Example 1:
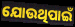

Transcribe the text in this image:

ଯୋଉଥିପାଇଁ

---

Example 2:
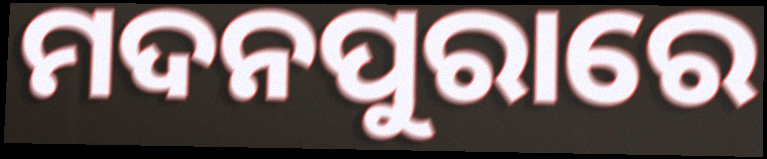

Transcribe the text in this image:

ମଦନପୁରାରେ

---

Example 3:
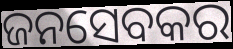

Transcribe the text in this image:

ଜନସେବକର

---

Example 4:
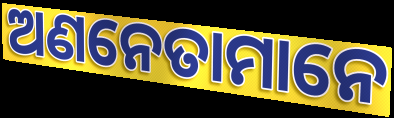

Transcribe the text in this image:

ଅଣନେତାମାନେ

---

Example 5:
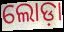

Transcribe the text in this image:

ଲୋଡ଼ା